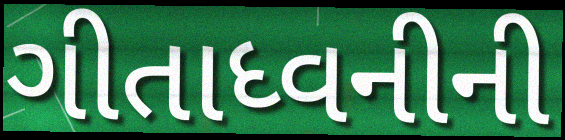
ગીતાધ્વનીની